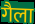
गैला